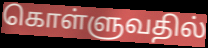
கொள்ளுவதில்